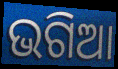
ଭଗିଆ